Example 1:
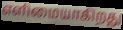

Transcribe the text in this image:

எளிமையாகிறது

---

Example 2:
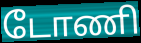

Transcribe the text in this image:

டோணி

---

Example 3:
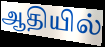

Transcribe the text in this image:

ஆதியில்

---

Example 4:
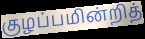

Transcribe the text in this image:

குழப்பமின்றித்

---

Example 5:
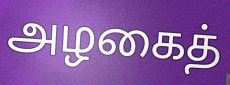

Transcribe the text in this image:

அழகைத்